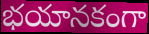
భయానకంగా